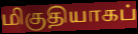
மிகுதியாகப்